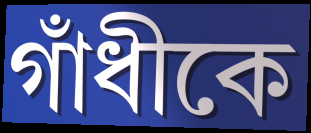
গাঁধীকে